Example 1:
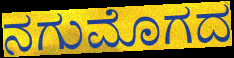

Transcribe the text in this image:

ನಗುಮೊಗದ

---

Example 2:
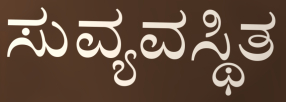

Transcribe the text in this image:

ಸುವ್ಯವಸ್ಥಿತ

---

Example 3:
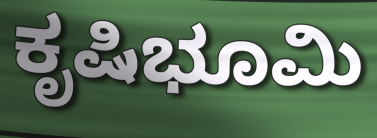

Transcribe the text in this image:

ಕೃಷಿಭೂಮಿ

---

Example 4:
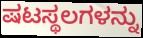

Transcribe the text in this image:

ಷಟಸ್ಥಲಗಳನ್ನು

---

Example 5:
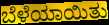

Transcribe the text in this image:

ಬೆಳೆಯಾಯಿತು